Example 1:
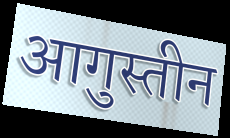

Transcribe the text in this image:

आगुस्तीन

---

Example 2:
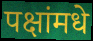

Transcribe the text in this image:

पक्षांमधे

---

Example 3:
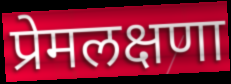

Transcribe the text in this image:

प्रेमलक्षणा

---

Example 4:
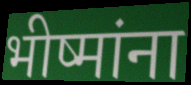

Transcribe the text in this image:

भीष्मांना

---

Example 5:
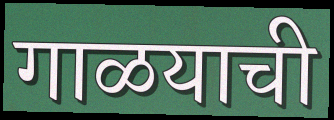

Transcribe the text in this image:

गाळयाची